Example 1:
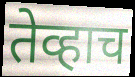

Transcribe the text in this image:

तेव्हाच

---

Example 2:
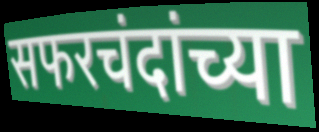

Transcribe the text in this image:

सफरचंदांच्या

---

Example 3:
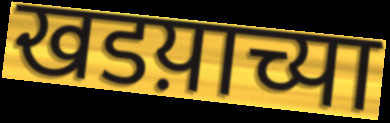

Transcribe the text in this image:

खडय़ाच्या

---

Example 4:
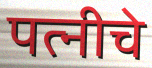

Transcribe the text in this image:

पत्‍नीचे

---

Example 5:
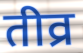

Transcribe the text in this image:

तीव्र